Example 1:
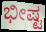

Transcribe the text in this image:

ಭೀಷ್ಟ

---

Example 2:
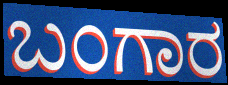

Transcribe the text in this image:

ಬಂಗಾರ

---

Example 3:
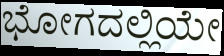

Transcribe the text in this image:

ಭೋಗದಲ್ಲಿಯೇ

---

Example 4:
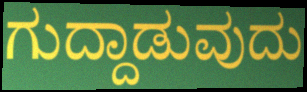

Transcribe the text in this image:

ಗುದ್ದಾಡುವುದು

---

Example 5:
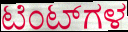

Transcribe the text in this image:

ಟೆಂಟ್‌ಗಳ